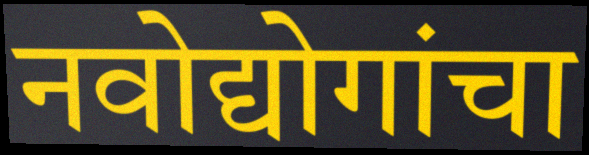
नवोद्योगांचा